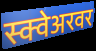
स्क्वेअरवर